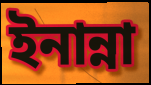
ইনান্না